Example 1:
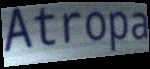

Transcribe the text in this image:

Atropa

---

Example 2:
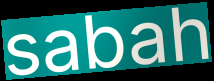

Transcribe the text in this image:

sabah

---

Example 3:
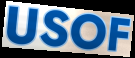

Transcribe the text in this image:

USOF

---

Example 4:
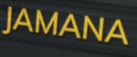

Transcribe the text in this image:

JAMANA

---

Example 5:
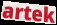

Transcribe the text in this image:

artek